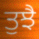
ਤੁਝੈ